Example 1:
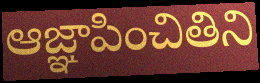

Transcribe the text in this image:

ఆజ్ఞాపించితిని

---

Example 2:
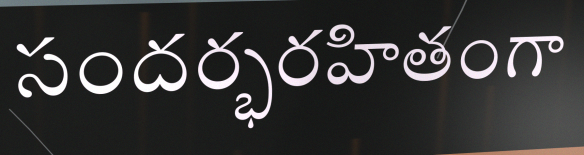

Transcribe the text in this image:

సందర్భరహితంగా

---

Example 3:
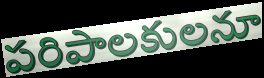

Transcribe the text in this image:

పరిపాలకులనూ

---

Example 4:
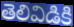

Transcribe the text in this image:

తెలివిడికి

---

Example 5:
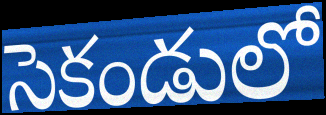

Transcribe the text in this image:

సెకండులో